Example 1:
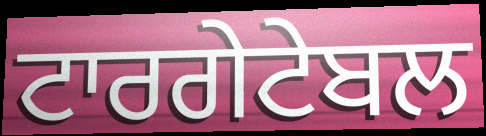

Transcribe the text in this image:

ਟਾਰਗੇਟੇਬਲ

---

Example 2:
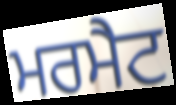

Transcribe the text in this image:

ਮਰਮੈਟ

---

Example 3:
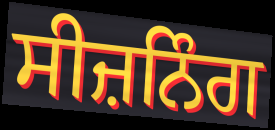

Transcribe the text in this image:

ਸੀਜ਼ਨਿੰਗ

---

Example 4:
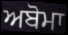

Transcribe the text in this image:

ਅਬੋਮਾ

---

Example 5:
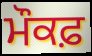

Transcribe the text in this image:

ਮੌਕਫ਼